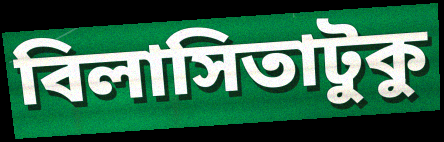
বিলাসিতাটুকু